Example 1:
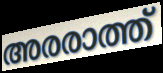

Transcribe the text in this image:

അരരാത്ത്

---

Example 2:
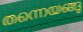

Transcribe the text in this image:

തന്നെയങ്ങു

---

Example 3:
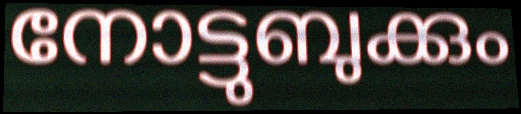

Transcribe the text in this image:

നോട്ടുബുക്കും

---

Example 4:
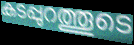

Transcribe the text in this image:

കടപ്പുറത്തൂടെ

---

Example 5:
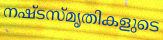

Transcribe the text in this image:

നഷ്ടസ്മൃതികളുടെ